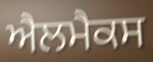
ਐਲਮੈਕਸ